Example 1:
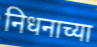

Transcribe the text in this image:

निधनाच्या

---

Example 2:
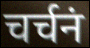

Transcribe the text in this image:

चर्चनं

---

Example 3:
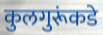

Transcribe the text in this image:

कुलगुरूंकडे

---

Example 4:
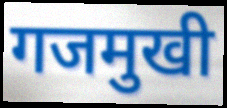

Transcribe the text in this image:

गजमुखी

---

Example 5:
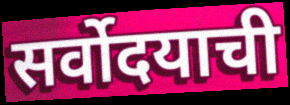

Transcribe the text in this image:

सर्वोदयाची